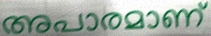
അപാരമാണ്